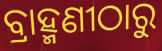
ବ୍ରାହ୍ମଣୀଠାରୁ